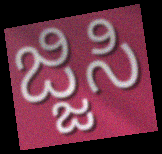
ಜ್ಜಿಸಿ